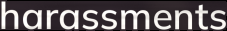
harassments